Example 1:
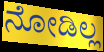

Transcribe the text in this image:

ನೋಡಿಲ್ಲ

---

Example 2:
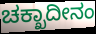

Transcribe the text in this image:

ಚಕ್ಖಾದೀನಂ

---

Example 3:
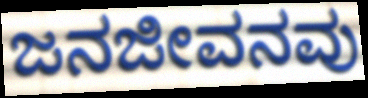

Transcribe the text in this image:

ಜನಜೀವನವು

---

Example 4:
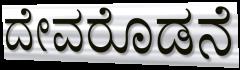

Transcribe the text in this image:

ದೇವರೊಡನೆ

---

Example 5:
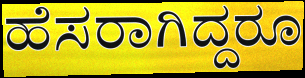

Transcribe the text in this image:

ಹೆಸರಾಗಿದ್ದರೂ